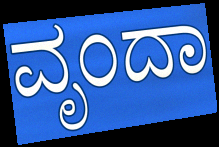
ವೃಂದಾ